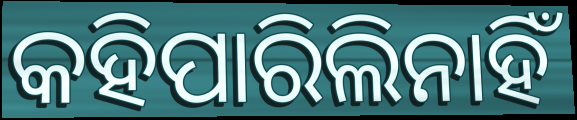
କହିପାରିଲିନାହିଁ